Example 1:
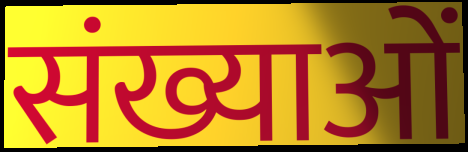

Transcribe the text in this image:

संख्याओं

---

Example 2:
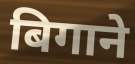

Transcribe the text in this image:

बिगाने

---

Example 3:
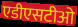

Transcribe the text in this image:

एडीएसटीओ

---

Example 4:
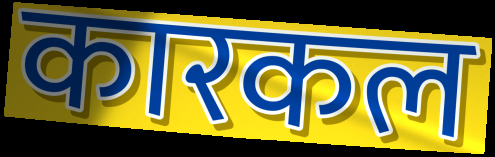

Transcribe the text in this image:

कारकल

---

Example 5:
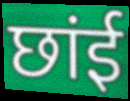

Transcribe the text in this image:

छांई